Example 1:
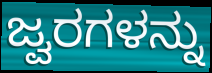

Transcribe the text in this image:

ಜ್ವರಗಳನ್ನು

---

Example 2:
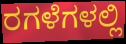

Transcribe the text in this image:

ರಗಳೆಗಳಲ್ಲಿ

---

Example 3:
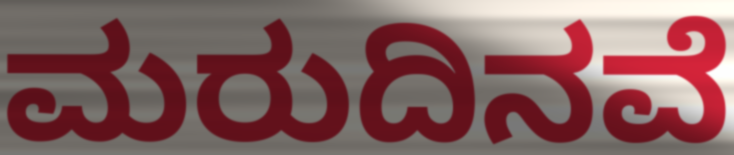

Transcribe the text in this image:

ಮರುದಿನವೆ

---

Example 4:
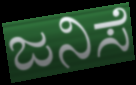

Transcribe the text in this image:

ಜನಿಸೆ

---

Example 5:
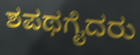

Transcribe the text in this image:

ಶಪಥಗೈದರು